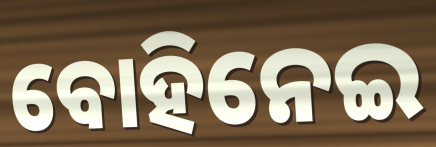
ବୋହିନେଇ